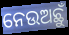
ନେଉଅଛୁଁ